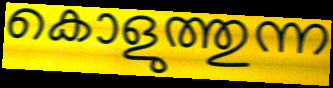
കൊളുത്തുന്ന